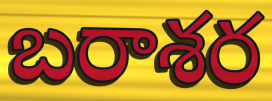
బరాశర